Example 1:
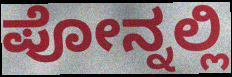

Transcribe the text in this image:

ಪೋನ್ನಲ್ಲಿ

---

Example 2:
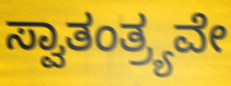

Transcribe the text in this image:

ಸ್ವಾತಂತ್ರ್ಯವೇ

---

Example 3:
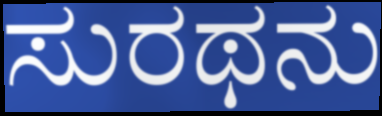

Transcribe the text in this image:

ಸುರಥನು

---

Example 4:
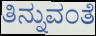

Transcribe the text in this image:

ತಿನ್ನುವಂತೆ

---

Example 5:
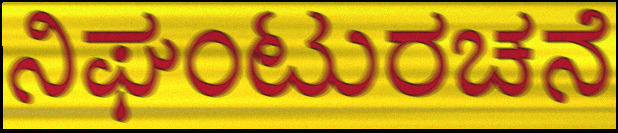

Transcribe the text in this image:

ನಿಘಂಟುರಚನೆ